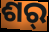
ଶର୍